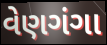
વેણગંગા